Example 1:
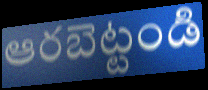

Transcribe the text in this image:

ఆరబెట్టండి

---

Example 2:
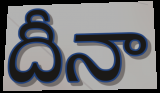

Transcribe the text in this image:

దీనా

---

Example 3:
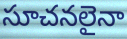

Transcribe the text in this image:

సూచనలైనా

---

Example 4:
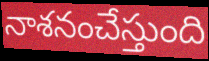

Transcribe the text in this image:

నాశనంచేస్తుంది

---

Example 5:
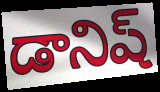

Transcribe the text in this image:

డానిష్